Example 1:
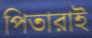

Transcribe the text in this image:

পিতারাই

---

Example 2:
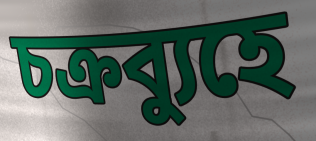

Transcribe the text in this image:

চক্রব্যুহে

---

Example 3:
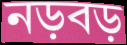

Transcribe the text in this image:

নড়বড়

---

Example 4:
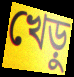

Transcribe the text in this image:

খেড়ু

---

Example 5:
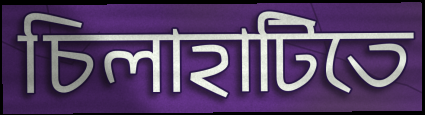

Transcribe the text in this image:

চিলাহাটিতে